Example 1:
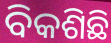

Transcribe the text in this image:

ବିକଶିଛି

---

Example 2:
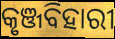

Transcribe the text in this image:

କୃଞ୍ଜବିହାରୀ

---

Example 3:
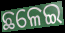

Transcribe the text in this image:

ଛଳେଇ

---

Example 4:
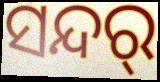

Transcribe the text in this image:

ସନ୍ଦର୍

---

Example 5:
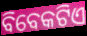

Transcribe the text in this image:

ବିବେକଟିଏ